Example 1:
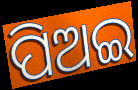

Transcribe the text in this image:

ପିଅଇ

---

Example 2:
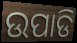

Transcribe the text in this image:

ଉପାଡି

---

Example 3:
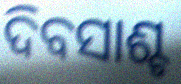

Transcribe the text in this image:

ଦିବସାଶ୍ଚ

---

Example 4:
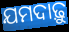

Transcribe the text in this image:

ଯମଦାଢ଼ୁ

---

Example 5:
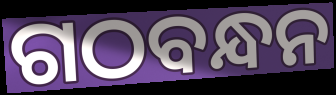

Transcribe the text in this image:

ଗଠବନ୍ଧନ